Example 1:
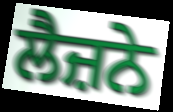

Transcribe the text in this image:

ਲੈਜ਼ਨੇ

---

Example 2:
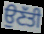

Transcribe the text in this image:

ਉਣੱਤੀ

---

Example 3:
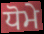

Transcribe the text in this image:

ਧੋਮੇ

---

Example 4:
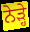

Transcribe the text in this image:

ਨੇੜ੍ਹੇ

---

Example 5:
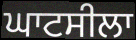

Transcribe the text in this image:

ਘਾਟਸੀਲਾ